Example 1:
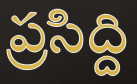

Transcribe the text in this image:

ప్రసిద్ది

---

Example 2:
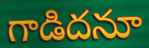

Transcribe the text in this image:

గాడిదనూ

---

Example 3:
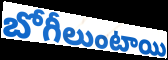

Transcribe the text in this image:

బోగీలుంటాయి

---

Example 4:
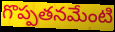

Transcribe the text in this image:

గొప్పతనమేంటి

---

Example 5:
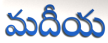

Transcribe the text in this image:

మదీయ